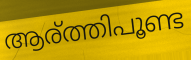
ആര്ത്തിപൂണ്ട